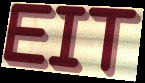
EIT